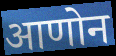
आणोन